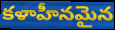
కళాహీనమైన